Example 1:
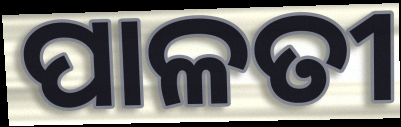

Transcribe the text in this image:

ପାଳତୀ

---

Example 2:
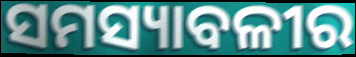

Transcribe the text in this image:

ସମସ୍ୟାବଳୀର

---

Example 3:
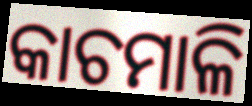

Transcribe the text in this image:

କାଚମାଳି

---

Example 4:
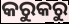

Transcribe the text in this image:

କରୁକରୁ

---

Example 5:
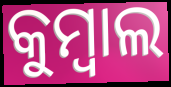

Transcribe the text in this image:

କୁମ୍ବାଲ